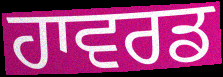
ਹਾਵਰਡ